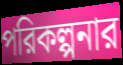
পরিকল্পনার